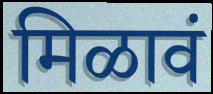
मिळावं